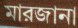
মারজানা